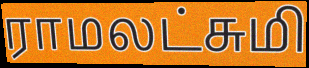
ராமலட்சுமி